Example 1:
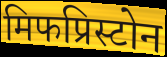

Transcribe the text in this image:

मिफप्रिस्टोन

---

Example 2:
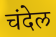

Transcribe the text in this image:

चंदेल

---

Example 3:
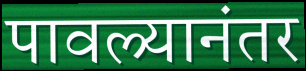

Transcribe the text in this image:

पावल्यानंतर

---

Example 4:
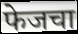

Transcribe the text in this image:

फेजचा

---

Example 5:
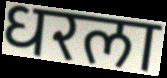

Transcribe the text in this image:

धरला